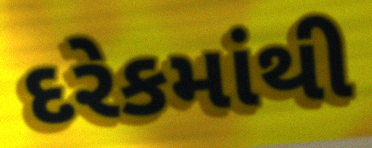
દરેકમાંથી